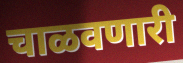
चाळवणारी